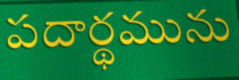
పదార్థమును